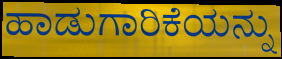
ಹಾಡುಗಾರಿಕೆಯನ್ನು